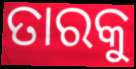
ତାରକୁ